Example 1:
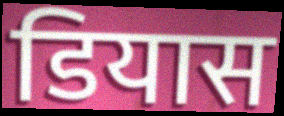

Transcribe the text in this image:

डियास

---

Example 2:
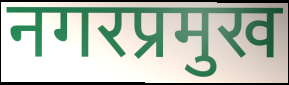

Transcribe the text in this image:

नगरप्रमुख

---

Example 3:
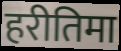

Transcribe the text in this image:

हरीतिमा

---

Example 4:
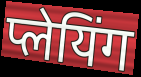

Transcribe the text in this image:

प्लेयिंग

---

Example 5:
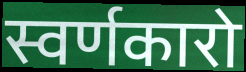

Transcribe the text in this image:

स्वर्णकारो